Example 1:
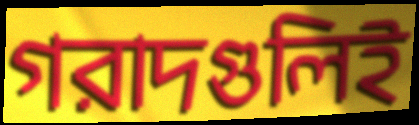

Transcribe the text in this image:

গরাদগুলিই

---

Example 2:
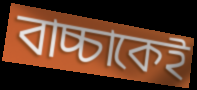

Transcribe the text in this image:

বাচ্চাকেই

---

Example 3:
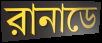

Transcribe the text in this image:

রানাডে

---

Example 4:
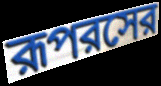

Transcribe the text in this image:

রূপরসের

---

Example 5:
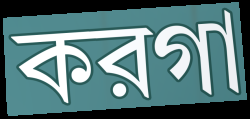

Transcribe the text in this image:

করগা